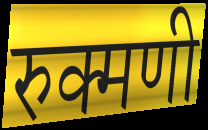
रुक्मणी